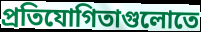
প্রতিযোগিতাগুলোতে